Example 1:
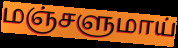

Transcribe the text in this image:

மஞ்சளுமாய்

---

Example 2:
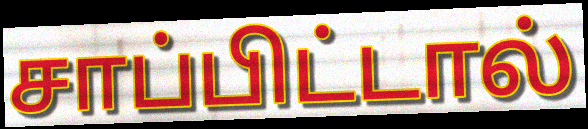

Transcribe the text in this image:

சாப்பிட்டால்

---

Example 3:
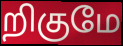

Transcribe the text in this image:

றிகுமே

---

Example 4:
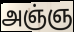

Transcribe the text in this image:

அஞ்ஞ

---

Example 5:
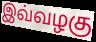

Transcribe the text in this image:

இவ்வழகு